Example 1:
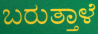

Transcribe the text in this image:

ಬರುತ್ತಾಳೆ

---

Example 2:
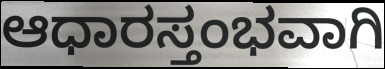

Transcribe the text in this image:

ಆಧಾರಸ್ತಂಭವಾಗಿ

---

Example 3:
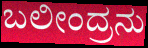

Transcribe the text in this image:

ಬಲೀಂದ್ರನು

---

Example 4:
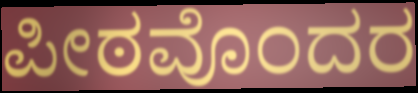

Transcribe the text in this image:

ಪೀಠವೊಂದರ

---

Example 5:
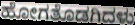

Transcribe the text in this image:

ಹೋಗತೊಡಗಿದಳು